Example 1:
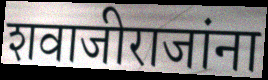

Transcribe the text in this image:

शवाजीराजांना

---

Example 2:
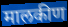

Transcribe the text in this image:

मालकीण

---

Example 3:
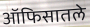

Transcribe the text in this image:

ऑफिसातले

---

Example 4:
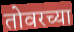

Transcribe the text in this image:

तोवरच्या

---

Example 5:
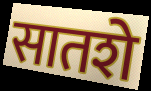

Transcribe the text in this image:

सातशे